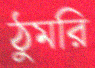
ঠুমরি